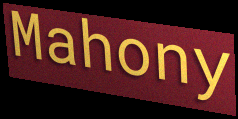
Mahony